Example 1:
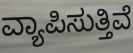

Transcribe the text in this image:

ವ್ಯಾಪಿಸುತ್ತಿವೆ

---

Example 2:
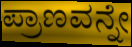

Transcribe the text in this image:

ಪ್ರಾಣವನ್ನೇ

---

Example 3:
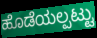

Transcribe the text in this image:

ಹೊಡೆಯಲ್ಪಟ್ಟು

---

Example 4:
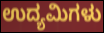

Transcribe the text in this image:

ಉದ್ಯಮಿಗಳು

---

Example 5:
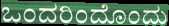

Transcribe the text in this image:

ಒಂದರಿಂದೊಂದು